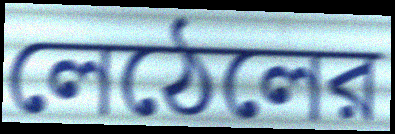
লেঠেলের